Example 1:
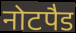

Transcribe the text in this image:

नोटपैड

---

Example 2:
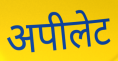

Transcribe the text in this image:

अपीलेट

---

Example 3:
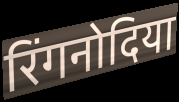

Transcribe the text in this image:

रिंगनोदिया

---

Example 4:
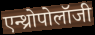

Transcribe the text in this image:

एन्थ्रोपोलॉजी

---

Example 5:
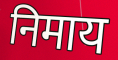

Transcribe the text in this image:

निमाय